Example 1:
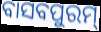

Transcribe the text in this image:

ବାସବପୁରମ୍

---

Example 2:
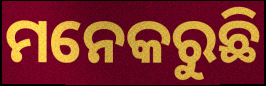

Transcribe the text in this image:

ମନେକରୁଛି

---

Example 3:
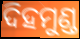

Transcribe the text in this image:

ଦିହମୁଣ୍ଡ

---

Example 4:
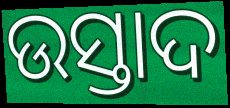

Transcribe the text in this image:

ଉସ୍ତାଦ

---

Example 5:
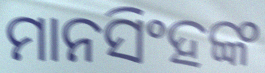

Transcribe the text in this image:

ମାନସିଂହଙ୍କ